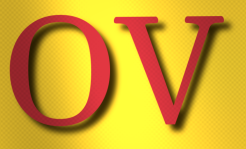
OV